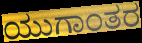
ಯುಗಾಂತರ